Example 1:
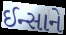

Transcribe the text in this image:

ઈન્સાને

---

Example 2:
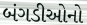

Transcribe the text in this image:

બંગડીઓનો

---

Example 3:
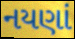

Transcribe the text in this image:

નયણાં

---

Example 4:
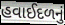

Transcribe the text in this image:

હવાઈદળનું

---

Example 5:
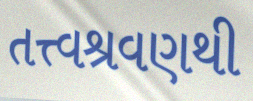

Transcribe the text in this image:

તત્ત્વશ્રવણથી